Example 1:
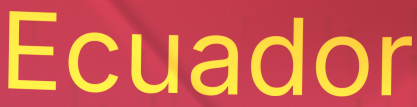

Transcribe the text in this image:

Ecuador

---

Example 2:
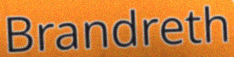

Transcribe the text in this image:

Brandreth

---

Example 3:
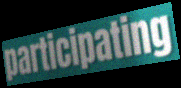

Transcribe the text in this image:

participating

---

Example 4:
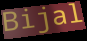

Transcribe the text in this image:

Bijal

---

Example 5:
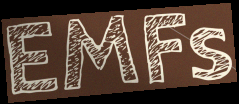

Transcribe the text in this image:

EMFs